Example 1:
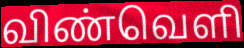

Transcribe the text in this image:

விண்வெளி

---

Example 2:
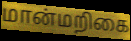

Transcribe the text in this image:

மான்மறிகை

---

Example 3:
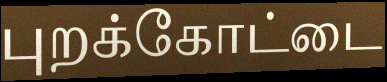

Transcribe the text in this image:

புறக்கோட்டை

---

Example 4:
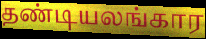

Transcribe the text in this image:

தண்டியலங்கார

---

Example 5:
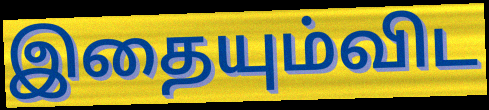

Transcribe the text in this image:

இதையும்விட